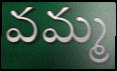
వమ్మ